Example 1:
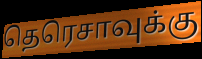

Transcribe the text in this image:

தெரெசாவுக்கு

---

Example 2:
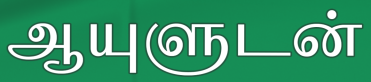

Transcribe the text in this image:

ஆயுளுடன்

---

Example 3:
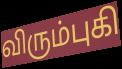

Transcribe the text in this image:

விரும்புகி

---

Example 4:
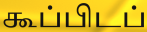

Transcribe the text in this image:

கூப்பிடப்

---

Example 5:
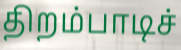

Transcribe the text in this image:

திறம்பாடிச்